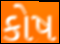
કોષ